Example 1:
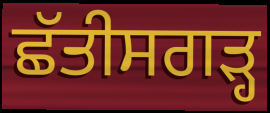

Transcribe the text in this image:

ਛੱਤੀਸਗੜ੍ਹ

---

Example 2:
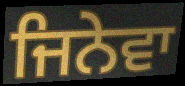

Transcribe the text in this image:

ਜਿਨੇਵਾ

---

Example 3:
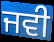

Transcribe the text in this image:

ਜਵੀ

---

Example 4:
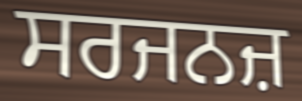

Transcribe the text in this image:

ਸਰਜਨਜ਼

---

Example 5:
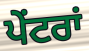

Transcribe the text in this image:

ਪੇਂਟਰਾਂ